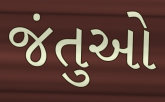
જંતુઓ